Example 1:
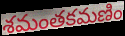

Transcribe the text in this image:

శమంతకమణిం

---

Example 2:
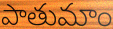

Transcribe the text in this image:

పాతుమాం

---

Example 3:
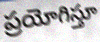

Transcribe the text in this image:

ప్రయోగిస్తూ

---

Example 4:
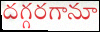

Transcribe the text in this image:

దగ్గరగానూ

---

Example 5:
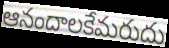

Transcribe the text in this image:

ఆనందాలకేమరుదు